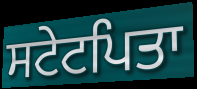
ਸਟੇਟਪਿਤਾ